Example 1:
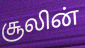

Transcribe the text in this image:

சூலின்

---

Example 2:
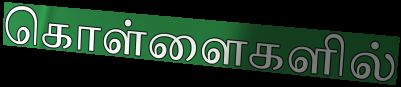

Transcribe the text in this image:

கொள்ளைகளில்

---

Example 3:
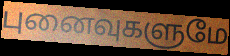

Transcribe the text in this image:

புனைவுகளுமே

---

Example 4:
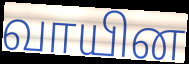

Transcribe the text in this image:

வாயின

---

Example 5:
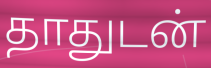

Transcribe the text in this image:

தாதுடன்